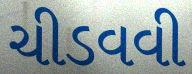
ચીડવવી